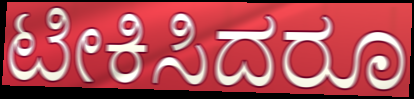
ಟೀಕಿಸಿದರೂ